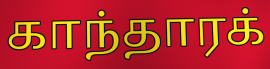
காந்தாரக்